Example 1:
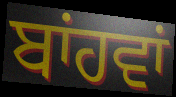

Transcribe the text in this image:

ਬਾਂਹਵਾਂ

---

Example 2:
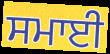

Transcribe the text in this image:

ਸਮਾਈ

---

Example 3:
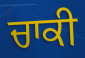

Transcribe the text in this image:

ਚਾਕੀ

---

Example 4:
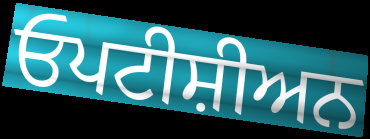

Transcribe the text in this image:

ਓਪਟੀਸ਼ੀਅਨ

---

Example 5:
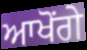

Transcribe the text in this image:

ਆਖੋਂਗੇ